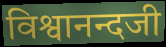
विश्वानन्दजी